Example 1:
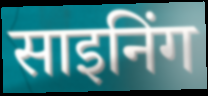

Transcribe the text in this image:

साइनिंग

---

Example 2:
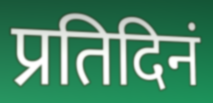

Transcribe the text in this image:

प्रतिदिनं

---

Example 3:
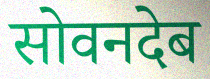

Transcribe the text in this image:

सोवनदेब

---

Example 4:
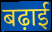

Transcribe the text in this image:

बढ़ाई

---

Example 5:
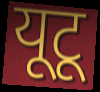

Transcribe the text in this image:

यूटू